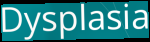
Dysplasia